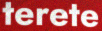
terete